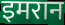
इमरान